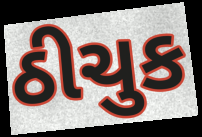
ઠીચુક